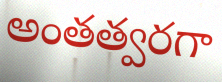
అంతత్వరగా